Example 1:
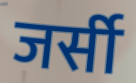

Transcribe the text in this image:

जर्सी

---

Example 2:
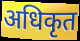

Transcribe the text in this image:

अधिकृत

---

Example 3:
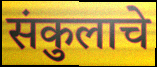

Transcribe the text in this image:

संकुलाचे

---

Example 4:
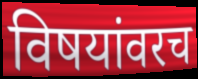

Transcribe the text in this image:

विषयांवरच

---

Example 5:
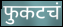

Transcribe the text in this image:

फुकटचं